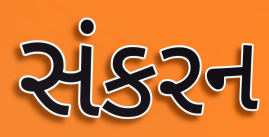
સંકરન